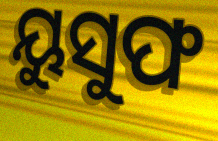
ୟୁସୁଫ